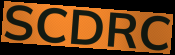
SCDRC